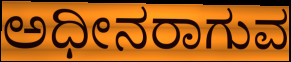
ಅಧೀನರಾಗುವ